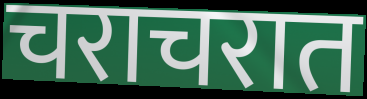
चराचरात